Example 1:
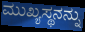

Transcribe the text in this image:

ಮುಖ್ಯಸ್ಥನನ್ನು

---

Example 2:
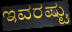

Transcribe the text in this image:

ಇವರಷ್ಟು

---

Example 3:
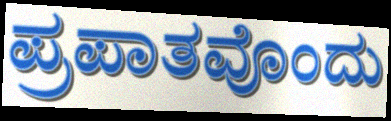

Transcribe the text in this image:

ಪ್ರಪಾತವೊಂದು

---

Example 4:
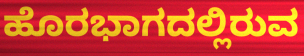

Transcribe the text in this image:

ಹೊರಭಾಗದಲ್ಲಿರುವ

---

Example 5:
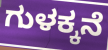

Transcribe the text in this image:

ಗುಳಕ್ಕನೆ